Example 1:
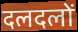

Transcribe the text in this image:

दलदलों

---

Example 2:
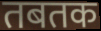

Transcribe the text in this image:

तबतक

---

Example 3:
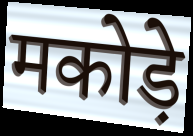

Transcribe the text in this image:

मकोड़े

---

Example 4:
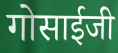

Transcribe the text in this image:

गोसाईजी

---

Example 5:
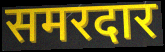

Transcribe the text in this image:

समरदार